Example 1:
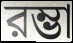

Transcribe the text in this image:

রম্ভা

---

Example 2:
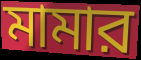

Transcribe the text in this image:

মামার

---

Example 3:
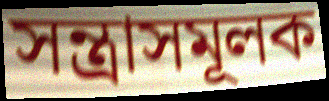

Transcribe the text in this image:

সন্ত্রাসমূলক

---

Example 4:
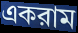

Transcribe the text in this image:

একরাম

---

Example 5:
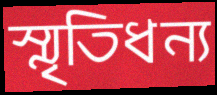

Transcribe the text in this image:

স্মৃতিধন্য